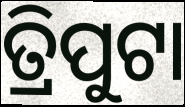
ତ୍ରିପୁଟା